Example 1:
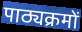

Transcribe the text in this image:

पाठ्यक्रमों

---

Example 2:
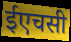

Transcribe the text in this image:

ईएचसी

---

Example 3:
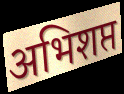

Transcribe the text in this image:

अभिशप्त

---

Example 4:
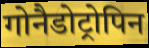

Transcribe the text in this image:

गोनैडोट्रोपिन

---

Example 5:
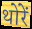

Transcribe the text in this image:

थोरें